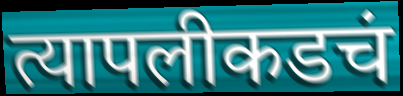
त्यापलीकडचं